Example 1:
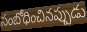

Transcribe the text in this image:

సంబోధించినప్పుడు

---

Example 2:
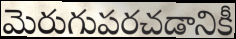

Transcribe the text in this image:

మెరుగుపరచడానికీ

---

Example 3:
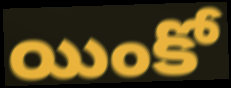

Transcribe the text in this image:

యింకో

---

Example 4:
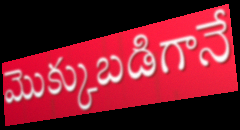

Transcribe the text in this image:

మొక్కుబడిగానే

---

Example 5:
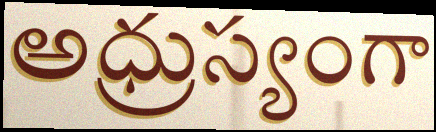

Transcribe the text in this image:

అధ్రుస్యంగా